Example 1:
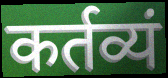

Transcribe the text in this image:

कर्तव्यं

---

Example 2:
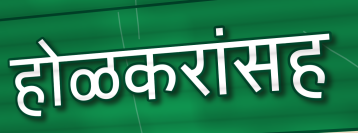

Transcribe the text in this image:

होळकरांसह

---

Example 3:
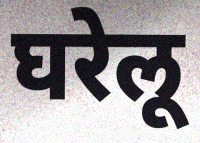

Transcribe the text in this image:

घरेलू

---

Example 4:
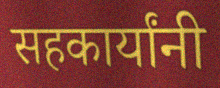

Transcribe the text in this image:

सहकार्यांनी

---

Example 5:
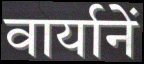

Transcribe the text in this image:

वार्यानें